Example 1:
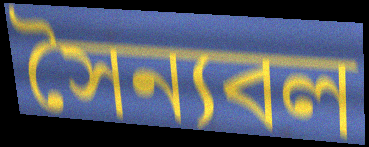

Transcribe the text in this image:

সৈন্যবল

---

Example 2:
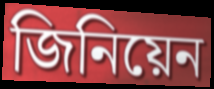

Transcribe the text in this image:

জিনিয়েন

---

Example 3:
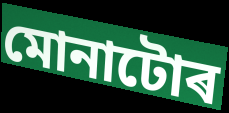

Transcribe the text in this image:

মোনাটোৰ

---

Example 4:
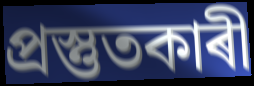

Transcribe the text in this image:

প্ৰস্তুতকাৰী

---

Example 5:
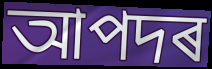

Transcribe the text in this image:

আপদৰ